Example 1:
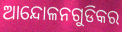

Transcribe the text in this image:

ଆନ୍ଦୋଳନଗୁଡିକର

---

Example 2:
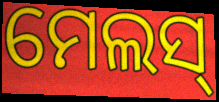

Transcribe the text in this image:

ମେଲସ୍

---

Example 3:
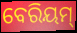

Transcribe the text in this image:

ବେରିୟମ୍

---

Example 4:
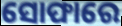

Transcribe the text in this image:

ସୋଫାରେ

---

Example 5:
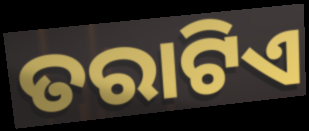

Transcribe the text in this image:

ତରାଟିଏ